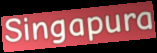
Singapura